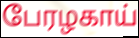
பேரழகாய்